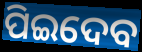
ପିଇଦେବ